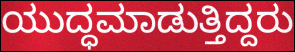
ಯುದ್ಧಮಾಡುತ್ತಿದ್ದರು